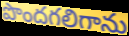
పొందగలిగాను